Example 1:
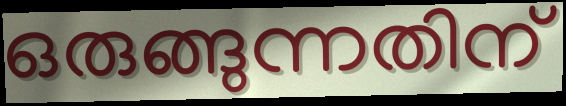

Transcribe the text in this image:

ഒരുങ്ങുന്നതിന്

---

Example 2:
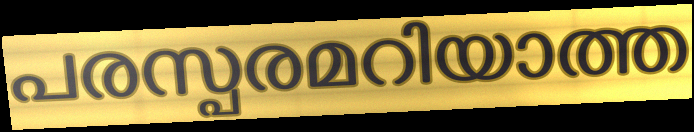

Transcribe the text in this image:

പരസ്പരമറിയാത്ത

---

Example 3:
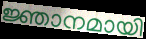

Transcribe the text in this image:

ജ്ഞാനമായി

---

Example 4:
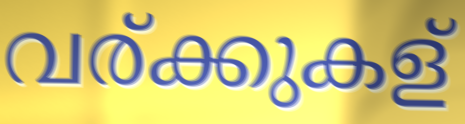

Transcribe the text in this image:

വര്ക്കുകള്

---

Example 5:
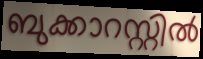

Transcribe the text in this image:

ബുക്കാറസ്റ്റിൽ